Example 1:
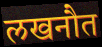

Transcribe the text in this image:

लखनौत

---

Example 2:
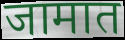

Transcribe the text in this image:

जामात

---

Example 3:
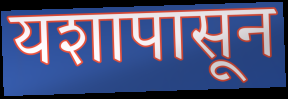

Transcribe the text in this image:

यशापासून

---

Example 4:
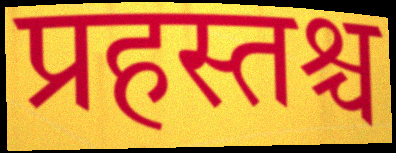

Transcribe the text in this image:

प्रहस्तश्च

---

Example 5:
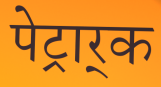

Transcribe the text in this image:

पेट्रार्क